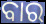
ବାର